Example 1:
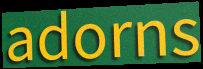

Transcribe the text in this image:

adorns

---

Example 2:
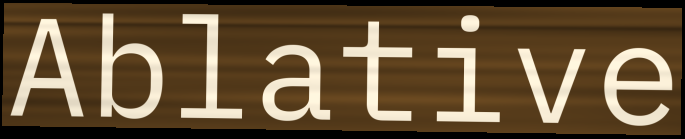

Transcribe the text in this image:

Ablative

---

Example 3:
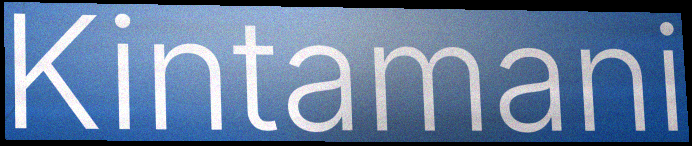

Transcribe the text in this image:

Kintamani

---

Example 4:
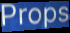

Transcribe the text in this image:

Props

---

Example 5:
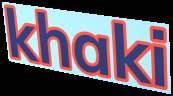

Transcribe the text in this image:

khaki